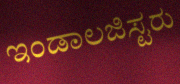
ಇಂಡಾಲಜಿಸ್ಟರು